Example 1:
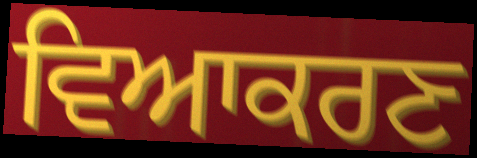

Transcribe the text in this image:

ਵਿਆਕਰਣ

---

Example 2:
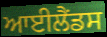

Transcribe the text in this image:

ਆਈਲੈਂਡਸ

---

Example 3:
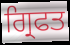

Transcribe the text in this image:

ਗ੍ਰਿਫਤ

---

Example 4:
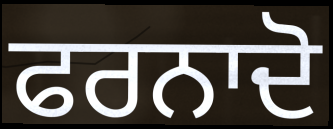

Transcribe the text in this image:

ਫਰਨਾਦੋ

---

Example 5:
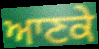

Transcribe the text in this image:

ਆਣਕੇ